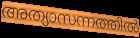
അത്യാസന്നത്തിൽ